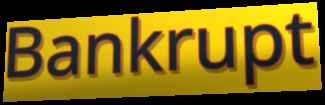
Bankrupt